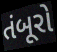
તંબૂરો